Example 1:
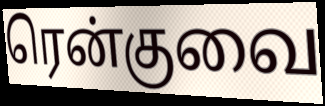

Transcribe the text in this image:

ரென்குவை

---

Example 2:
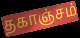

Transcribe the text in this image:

தகாஞ்சம்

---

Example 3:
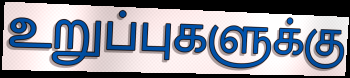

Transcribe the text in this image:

உறுப்புகளுக்கு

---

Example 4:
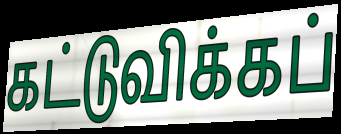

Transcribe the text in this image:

கட்டுவிக்கப்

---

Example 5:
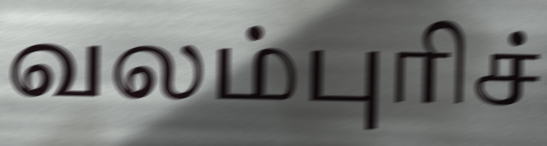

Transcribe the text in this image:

வலம்புரிச்